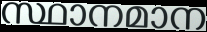
സ്ഥാനമാന